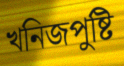
খনিজপুষ্টি